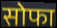
सोफा